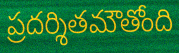
ప్రదర్శితమౌతోంది